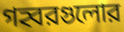
গহ্বরগুলোর